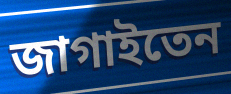
জাগাইতেন